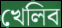
খেলিব